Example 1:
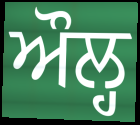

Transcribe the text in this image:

ਔਲ੍ਹ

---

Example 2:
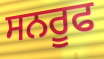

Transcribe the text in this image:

ਸਨਰੂਫ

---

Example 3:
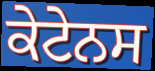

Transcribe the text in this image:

ਕੇਟੇਨਸ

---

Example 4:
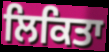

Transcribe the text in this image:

ਲਿਕਿਤਾ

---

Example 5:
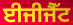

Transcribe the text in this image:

ਈਜੀਜੈੱਟ